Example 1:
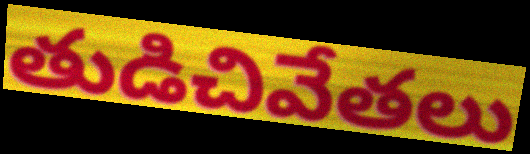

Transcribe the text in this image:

తుడిచివేతలు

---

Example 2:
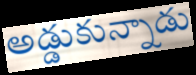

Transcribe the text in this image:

అడ్డుకున్నాడు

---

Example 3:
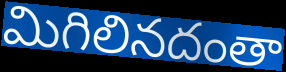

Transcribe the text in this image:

మిగిలినదంతా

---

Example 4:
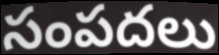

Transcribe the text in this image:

సంపదలు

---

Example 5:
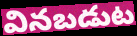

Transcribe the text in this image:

వినబడుట